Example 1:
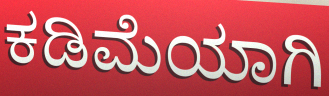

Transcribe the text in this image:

ಕಡಿಮೆಯಾಗಿ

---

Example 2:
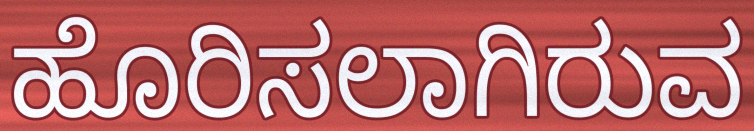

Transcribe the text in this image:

ಹೊರಿಸಲಾಗಿರುವ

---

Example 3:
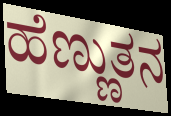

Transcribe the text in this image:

ಹೆಣ್ಣುತನ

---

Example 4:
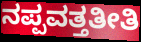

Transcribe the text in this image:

ನಪ್ಪವತ್ತತೀತಿ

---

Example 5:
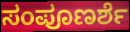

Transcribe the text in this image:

ಸಂಪೂಣರ್ಶೆ